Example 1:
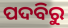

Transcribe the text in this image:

ପଦବିରୁ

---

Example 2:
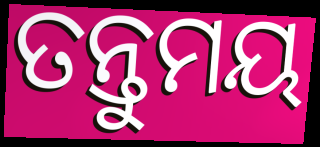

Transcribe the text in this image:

ତନ୍ତୁମୟ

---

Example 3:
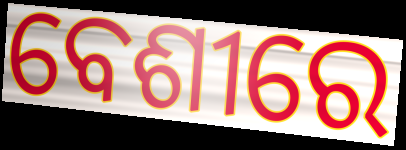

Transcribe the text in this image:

ବେଶୀରେ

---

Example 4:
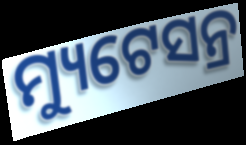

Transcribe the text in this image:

ମ୍ୟୁଟେସନ୍ର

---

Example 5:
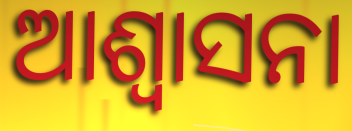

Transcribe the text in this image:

ଆଶ୍ୱାସନା